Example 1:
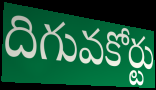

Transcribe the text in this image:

దిగువకోర్టు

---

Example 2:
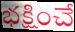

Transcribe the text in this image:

భక్షించే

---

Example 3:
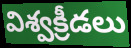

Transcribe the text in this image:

విశ్వక్రీడలు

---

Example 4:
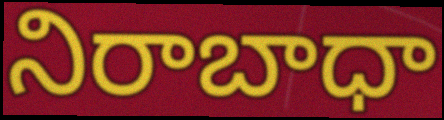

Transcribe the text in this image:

నిరాబాధా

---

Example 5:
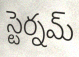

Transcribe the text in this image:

స్టెర్నమ్